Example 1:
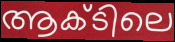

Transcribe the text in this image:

ആക്ടിലെ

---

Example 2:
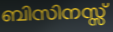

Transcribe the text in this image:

ബിസിനസ്സ്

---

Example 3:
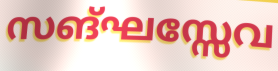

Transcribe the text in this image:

സങ്ഘസ്സേവ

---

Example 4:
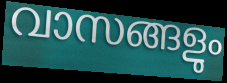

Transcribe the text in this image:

വാസങ്ങളും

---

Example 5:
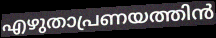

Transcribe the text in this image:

എഴുതാപ്രണയത്തിൻ